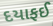
દયાફઈ